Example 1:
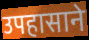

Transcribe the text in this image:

उपहासाने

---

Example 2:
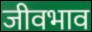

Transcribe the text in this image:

जीवभाव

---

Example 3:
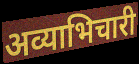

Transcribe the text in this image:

अव्याभिचारी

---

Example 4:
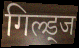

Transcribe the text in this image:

गिल्ड्ज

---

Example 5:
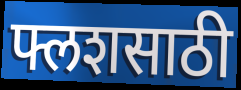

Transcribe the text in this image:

फ्लशसाठी